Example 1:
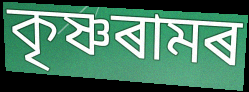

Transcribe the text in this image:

কৃষ্ণৰামৰ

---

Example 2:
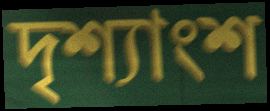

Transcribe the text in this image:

দৃশ্যাংশ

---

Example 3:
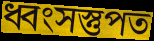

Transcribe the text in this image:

ধ্বংসস্তুপত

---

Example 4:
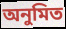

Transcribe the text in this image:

অনুমিত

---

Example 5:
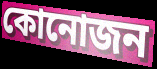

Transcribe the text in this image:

কোনোজন